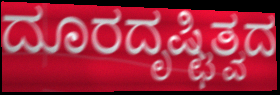
ದೂರದೃಷ್ಟಿತ್ವದ